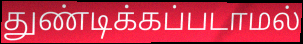
துண்டிக்கப்படாமல்